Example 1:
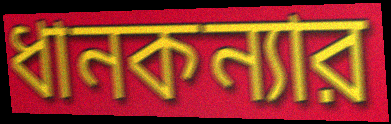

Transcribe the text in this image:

ধানকন্যার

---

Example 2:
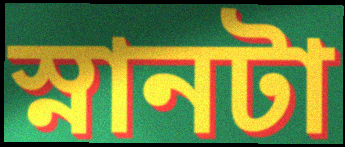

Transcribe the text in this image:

স্নানটা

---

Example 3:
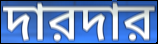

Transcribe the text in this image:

দারদার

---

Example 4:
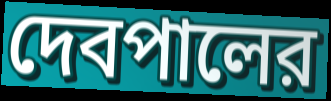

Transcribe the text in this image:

দেবপালের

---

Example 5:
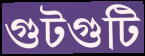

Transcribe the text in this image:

গুটগুটি